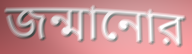
জন্মানোর